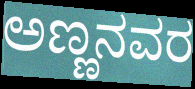
ಅಣ್ಣನವರ